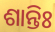
ଶାନ୍ତିଃ